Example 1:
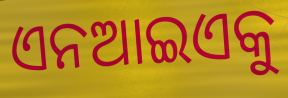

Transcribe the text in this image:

ଏନଆଇଏକୁ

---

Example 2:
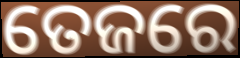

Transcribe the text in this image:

ତେଜରେ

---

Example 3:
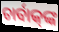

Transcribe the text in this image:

ଚାର୍ବାକ୍‌ଙ୍କ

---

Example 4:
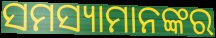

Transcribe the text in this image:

ସମସ୍ଯାମାନଙ୍କର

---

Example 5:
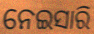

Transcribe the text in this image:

ନେଇସାରି